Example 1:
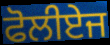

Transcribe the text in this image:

ਫੋਲੀਏਜ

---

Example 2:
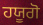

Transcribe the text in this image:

ਹਯੂਗੋ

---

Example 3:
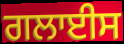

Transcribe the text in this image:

ਗਲਾਈਸ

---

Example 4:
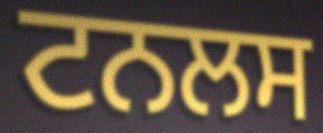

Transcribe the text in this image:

ਟਨਲਸ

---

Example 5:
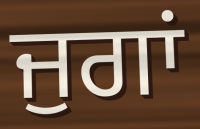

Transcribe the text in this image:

ਜੁਗਾਂ